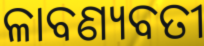
ଳାବଣ୍ୟବତୀ